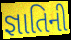
જ્ઞાતિની